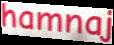
hamnaj